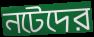
নটেদের